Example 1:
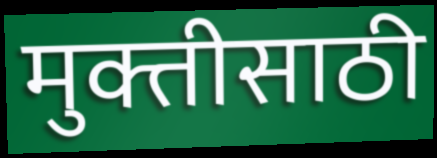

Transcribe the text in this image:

मुक्तीसाठी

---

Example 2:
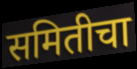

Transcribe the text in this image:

समितीचा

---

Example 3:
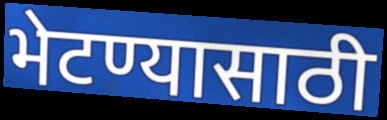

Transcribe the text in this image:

भेटण्यासाठी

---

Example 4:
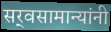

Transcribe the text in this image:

सर्वसामान्यांनी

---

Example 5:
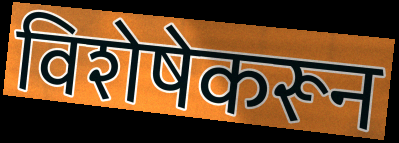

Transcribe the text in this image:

विशेषेकरून